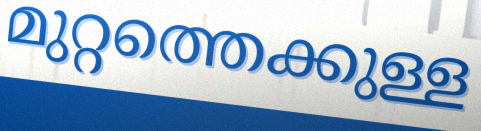
മുറ്റത്തെക്കുള്ള